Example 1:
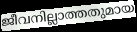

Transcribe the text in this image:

ജീവനില്ലാത്തതുമായ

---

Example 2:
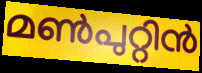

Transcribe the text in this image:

മൺപുറ്റിൻ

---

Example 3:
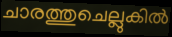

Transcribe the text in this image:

ചാരത്തുചെല്ലുകിൽ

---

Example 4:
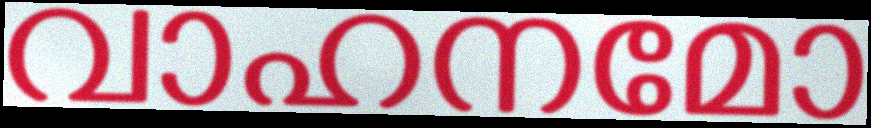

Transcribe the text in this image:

വാഹനമോ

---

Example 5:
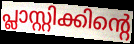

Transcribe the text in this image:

പ്ലാസ്റ്റിക്കിന്റെ